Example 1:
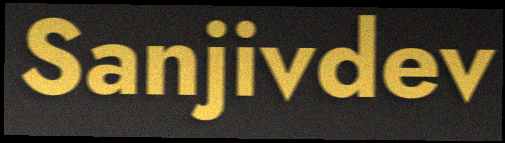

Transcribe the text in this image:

Sanjivdev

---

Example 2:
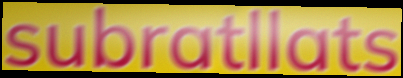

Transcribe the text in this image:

subratllats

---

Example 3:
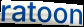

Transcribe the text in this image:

ratoon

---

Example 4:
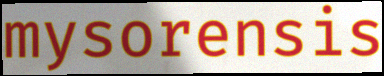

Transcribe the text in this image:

mysorensis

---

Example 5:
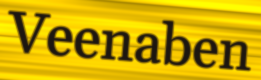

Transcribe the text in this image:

Veenaben